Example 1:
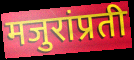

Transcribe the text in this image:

मजुरांप्रती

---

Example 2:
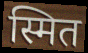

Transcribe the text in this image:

स्मित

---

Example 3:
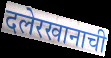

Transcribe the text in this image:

दलेरखानाची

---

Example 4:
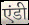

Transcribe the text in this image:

एंडी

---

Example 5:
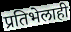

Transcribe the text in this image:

प्रतिभेलाही